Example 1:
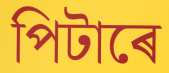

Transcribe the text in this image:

পিটাৰে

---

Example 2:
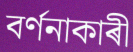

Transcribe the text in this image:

বৰ্ণনাকাৰী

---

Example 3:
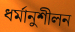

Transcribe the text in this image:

ধৰ্মানুশীলন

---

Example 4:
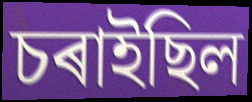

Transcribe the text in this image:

চৰাইছিল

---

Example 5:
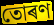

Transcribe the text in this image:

তোৰণ